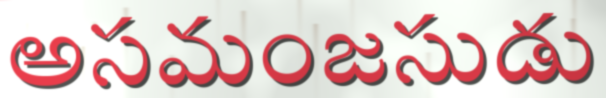
అసమంజసుడు